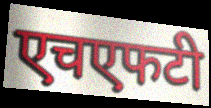
एचएफटी